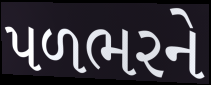
પળભરને